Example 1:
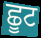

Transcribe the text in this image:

ਛੂਟ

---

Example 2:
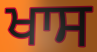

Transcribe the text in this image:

ਖਾਸ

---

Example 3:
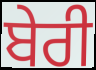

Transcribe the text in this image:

ਬੇਰੀ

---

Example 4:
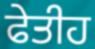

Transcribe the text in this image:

ਫੇਤੀਹ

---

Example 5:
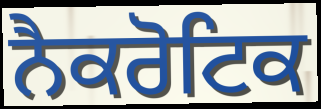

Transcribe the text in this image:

ਨੈਕਰੋਟਿਕ